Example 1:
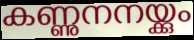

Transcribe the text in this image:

കണ്ണുനനയ്ക്കും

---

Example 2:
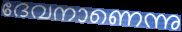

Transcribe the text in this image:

ദേവനാണെന്നു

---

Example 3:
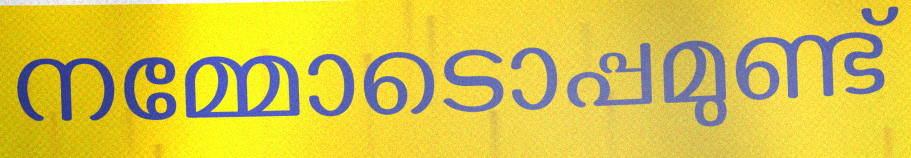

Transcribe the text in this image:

നമ്മോടൊപ്പമുണ്ട്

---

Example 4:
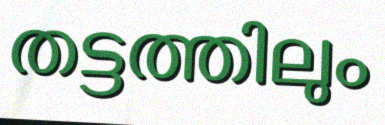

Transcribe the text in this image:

തട്ടത്തിലും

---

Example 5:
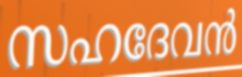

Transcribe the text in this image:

സഹദേവൻ